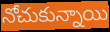
నోచుకున్నాయి